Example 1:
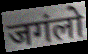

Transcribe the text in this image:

जगंलो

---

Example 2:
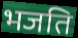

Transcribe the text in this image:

भजति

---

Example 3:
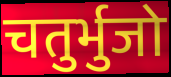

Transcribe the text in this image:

चतुर्भुजो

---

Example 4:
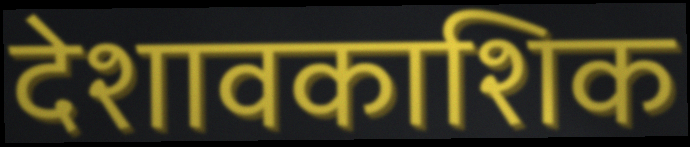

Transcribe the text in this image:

देशावकाशिक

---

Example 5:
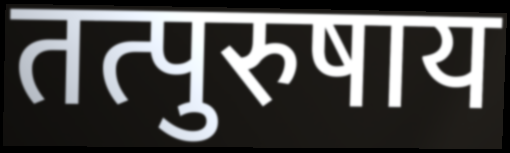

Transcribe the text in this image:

तत्पुरुषाय